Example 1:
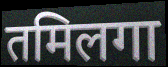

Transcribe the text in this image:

तमिलगा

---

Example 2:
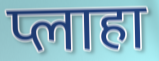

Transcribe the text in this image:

प्लाहा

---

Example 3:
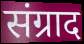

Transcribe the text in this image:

संग्राद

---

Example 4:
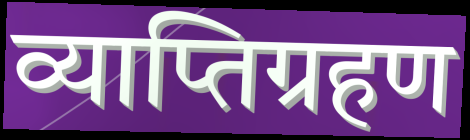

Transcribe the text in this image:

व्याप्तिग्रहण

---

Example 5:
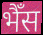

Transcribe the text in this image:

भैँस